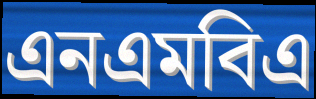
এনএমবিএ